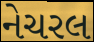
નેચરલ